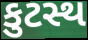
કુટસ્થ